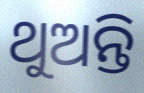
ଥୁଅନ୍ତି